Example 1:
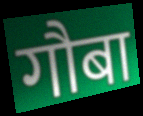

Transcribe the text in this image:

गौबा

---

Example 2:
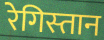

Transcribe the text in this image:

रेगिस्‍तान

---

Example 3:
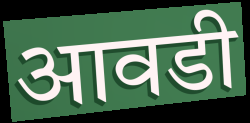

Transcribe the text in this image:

आवडी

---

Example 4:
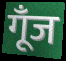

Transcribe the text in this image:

गूँज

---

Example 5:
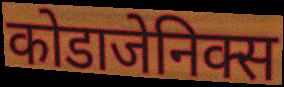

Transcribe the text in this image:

कोडाजेनिक्स